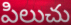
పిలుచు